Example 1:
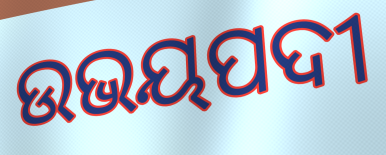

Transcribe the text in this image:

ଉଭୟପଦୀ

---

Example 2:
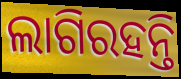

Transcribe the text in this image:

ଲାଗିରହନ୍ତି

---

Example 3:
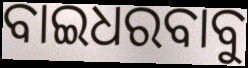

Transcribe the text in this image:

ବାଇଧରବାବୁ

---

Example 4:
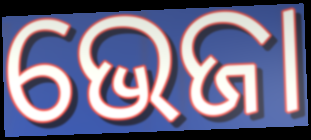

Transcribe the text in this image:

ଭେଜା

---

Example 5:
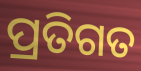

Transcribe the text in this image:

ପ୍ରତିଗତ